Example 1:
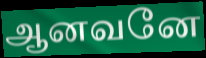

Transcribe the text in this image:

ஆனவனே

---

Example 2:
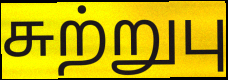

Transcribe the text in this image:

சுற்றுபு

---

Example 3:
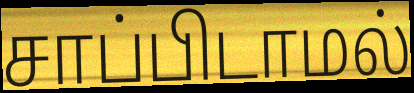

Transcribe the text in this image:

சாப்பிடாமல்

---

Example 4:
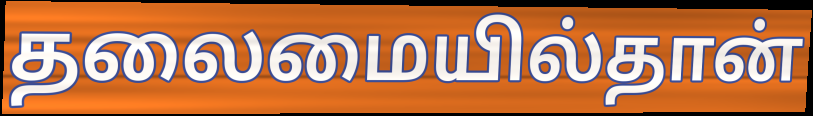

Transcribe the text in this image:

தலைமையில்தான்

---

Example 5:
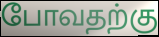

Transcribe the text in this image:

போவதற்கு